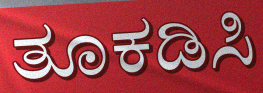
ತೂಕಡಿಸಿ